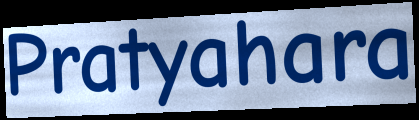
Pratyahara